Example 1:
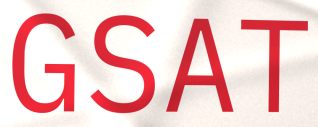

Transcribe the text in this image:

GSAT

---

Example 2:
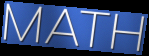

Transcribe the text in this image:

MATH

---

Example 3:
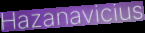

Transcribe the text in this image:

Hazanavicius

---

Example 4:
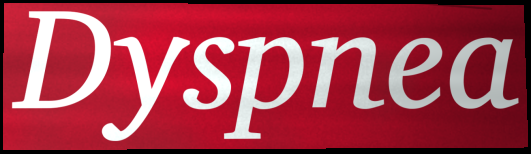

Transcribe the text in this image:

Dyspnea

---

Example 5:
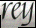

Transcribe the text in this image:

rey